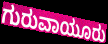
ಗುರುವಾಯೂರು